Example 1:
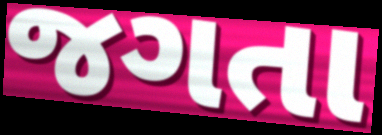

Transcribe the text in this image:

જગતા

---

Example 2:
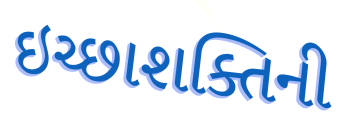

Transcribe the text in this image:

ઇચ્છાશક્તિની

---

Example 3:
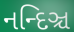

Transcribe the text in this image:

નન્દિઞ્ચ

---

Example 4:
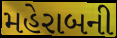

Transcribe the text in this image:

મહેરાબની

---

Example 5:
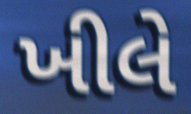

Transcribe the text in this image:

ખીલે